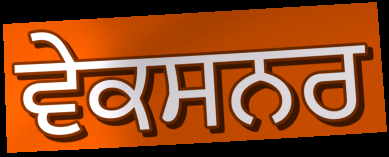
ਵੇਕਸਨਰ